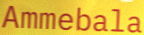
Ammebala